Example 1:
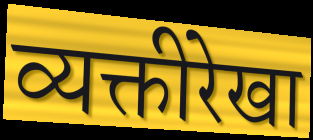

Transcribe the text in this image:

व्यक्तीरेखा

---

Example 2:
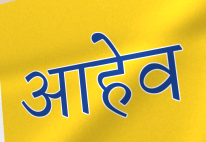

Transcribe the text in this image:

आहेव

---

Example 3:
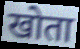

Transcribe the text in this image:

खोता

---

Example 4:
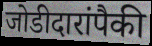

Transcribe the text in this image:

जोडीदारांपैकी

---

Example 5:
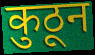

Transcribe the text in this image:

कुठून